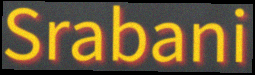
Srabani